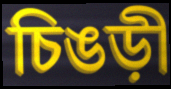
চিঙড়ী